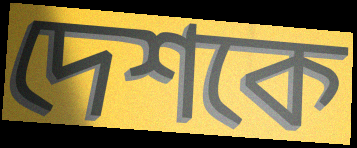
দেশকে